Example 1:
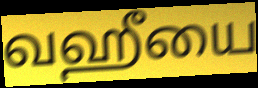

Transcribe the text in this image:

வஹீயை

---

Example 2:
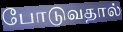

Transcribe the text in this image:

போடுவதால்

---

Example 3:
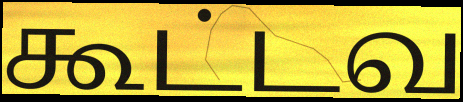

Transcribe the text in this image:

கூட்டவ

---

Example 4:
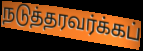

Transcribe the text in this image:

நடுத்தரவர்க்கப்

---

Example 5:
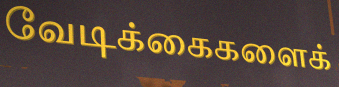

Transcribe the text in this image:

வேடிக்கைகளைக்